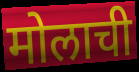
मोलाची